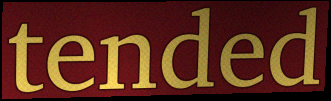
tended